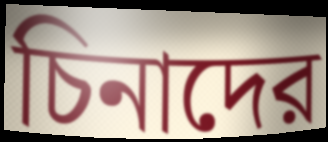
চিনাদের